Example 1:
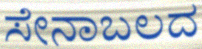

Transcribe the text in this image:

ಸೇನಾಬಲದ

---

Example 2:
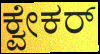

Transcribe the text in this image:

ಕ್ವೇಕರ್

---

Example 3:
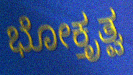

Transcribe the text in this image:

ಭೋಕ್ತೃತ್ವ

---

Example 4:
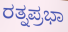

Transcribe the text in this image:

ರತ್ನಪ್ರಭಾ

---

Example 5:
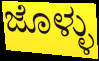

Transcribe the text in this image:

ಜೊಳ್ಳು